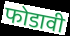
फोडावी